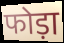
फोड़ा